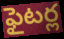
ఫైటర్ల